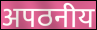
अपठनीय